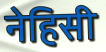
नेहिसी